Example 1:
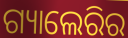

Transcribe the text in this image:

ଗ୍ୟାଲେରିର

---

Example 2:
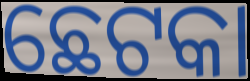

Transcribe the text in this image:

ଛେଟକା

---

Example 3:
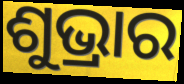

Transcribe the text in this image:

ଶୁଭ୍ରାର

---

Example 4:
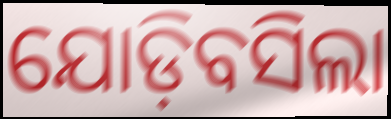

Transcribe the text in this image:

ଯୋଡ଼ିବସିଲା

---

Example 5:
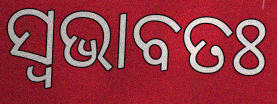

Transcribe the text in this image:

ସ୍ଵଭାବତଃ